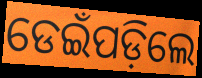
ଡେଇଁପଡ଼ିଲେ